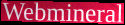
Webmineral